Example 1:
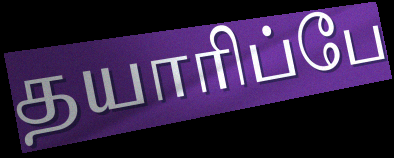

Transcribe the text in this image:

தயாரிப்பே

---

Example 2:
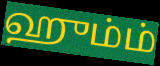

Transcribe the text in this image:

ஹும்ம்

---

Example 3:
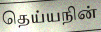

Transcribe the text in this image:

தெய்யநின்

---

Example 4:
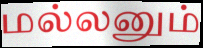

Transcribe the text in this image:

மல்லனும்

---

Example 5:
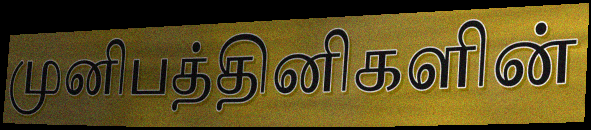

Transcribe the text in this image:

முனிபத்தினிகளின்